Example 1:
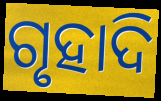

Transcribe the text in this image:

ଗୃହାଦି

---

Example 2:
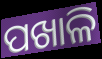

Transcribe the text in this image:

ପଖାଳି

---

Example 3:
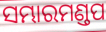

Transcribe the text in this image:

ସମ୍ଭାରମଣ୍ଡପ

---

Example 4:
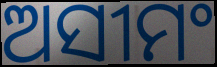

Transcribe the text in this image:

ଅସୀମଂ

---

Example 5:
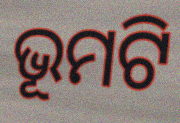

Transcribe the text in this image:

ଭୂମଟି